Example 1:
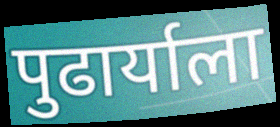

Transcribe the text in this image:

पुढार्याला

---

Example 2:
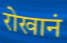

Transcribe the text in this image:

रोखानं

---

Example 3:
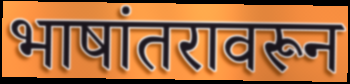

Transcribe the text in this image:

भाषांतरावरून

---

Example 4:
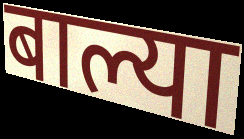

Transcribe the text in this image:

बाल्या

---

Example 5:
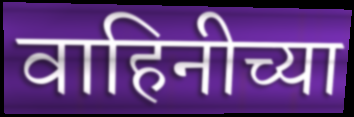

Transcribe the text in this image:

वाहिनीच्या